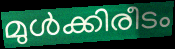
മുൾക്കിരീടം